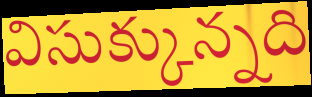
విసుక్కున్నది